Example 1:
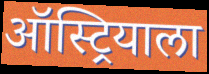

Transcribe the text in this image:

ऑस्ट्रियाला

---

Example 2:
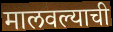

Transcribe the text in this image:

मालवल्याची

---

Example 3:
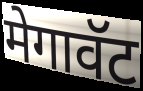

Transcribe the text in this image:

मेगावॅट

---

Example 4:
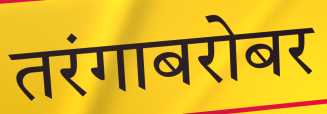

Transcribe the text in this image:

तरंगाबरोबर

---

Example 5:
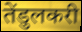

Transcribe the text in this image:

तेंडुलकरी